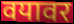
वयावर